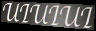
UIUIUI